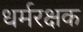
धर्मरक्षक